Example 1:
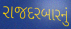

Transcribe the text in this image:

રાજદરબારનું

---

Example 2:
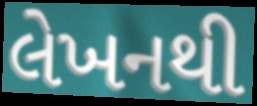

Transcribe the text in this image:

લેખનથી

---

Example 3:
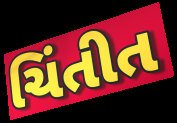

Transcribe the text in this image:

ચિંતીત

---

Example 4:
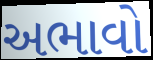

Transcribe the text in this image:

અભાવો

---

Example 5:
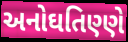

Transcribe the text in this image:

અનોઘતિણ્ણે